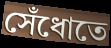
সেঁধোতে